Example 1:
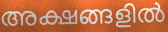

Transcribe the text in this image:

അക്ഷങ്ങളിൽ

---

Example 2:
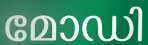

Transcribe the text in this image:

മോഡി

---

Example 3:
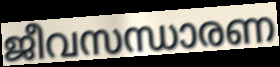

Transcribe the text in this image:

ജീവസന്ധാരണ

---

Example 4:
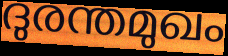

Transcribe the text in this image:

ദുരന്തമുഖം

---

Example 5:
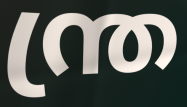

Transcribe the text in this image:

ന്ത്ര